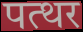
पत्‍थर